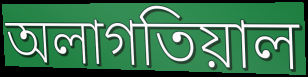
অলাগতিয়াল